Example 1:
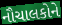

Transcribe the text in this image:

નૌચાલકોને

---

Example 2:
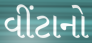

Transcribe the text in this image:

વીંટાનો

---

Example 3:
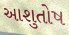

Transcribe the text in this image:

આશુતોષ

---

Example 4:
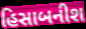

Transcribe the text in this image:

હિસાબનીશ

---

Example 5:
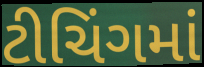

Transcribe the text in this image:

ટીચિંગમાં